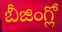
బీజింగ్లో